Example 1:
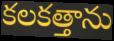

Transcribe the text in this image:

కలకత్తాను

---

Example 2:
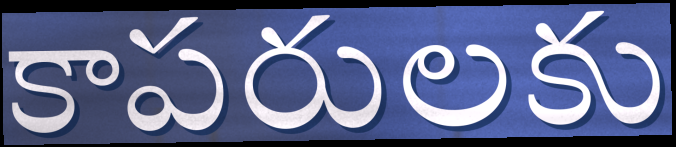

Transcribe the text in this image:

కాపరులకు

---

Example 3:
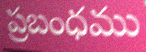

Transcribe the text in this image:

ప్రబంధము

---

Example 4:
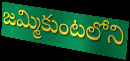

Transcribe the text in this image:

జమ్మికుంటలోని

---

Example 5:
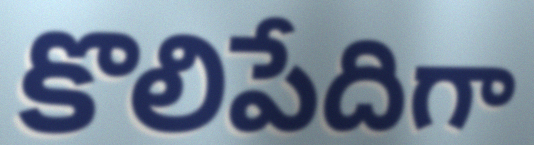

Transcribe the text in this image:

కొలిపేదిగా